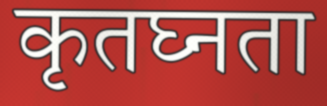
कृतघ्नता